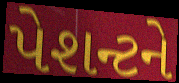
પેશન્ટને